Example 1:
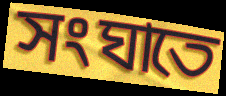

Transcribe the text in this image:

সংঘাতে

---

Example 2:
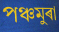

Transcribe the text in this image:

পঞ্চমুৰা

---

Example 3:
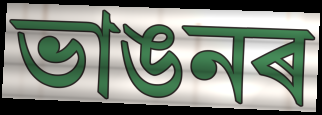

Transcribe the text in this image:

ভাঙনৰ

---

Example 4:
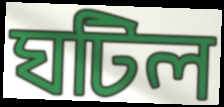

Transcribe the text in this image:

ঘটিল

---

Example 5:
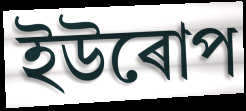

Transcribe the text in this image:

ইউৰোপ